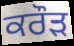
ਕਰੌੜ